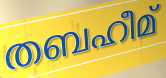
തബഹീമ്